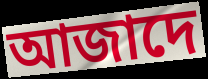
আজাদে